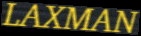
LAXMAN